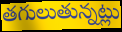
తగులుతున్నట్లు